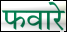
फवारे